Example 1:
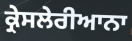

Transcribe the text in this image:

ਕ੍ਰੇਸਲੇਰੀਆਨਾ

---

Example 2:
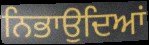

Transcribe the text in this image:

ਨਿਭਾਉਦਿਆਂ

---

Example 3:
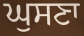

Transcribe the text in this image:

ਘੁਸਣਾ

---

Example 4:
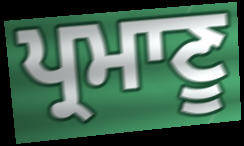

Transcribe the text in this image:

ਪ੍ਰਮਾਣੂ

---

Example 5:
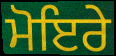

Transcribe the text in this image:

ਮੋਇਰੇ